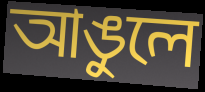
আঙুলে